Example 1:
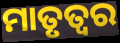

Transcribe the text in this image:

ମାତୃତ୍ୱର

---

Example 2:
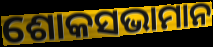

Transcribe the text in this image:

ଶୋକସଭାମାନ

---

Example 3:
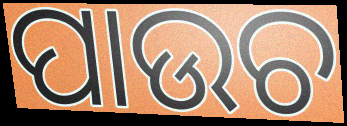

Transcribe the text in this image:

ପାଉଚ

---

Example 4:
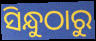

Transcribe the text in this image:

ସିନ୍ଧୁଠାରୁ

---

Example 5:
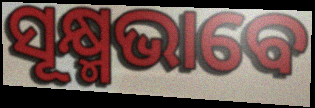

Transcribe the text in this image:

ସୂକ୍ଷ୍ମଭାବେ